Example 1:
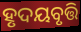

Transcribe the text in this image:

ହୃଦୟବୃତ୍ତି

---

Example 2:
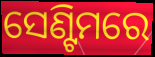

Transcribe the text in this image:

ସେଣ୍ଟିମରେ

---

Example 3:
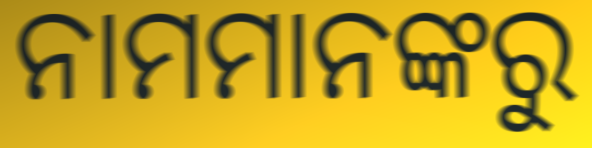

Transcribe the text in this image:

ନାମମାନଙ୍କରୁ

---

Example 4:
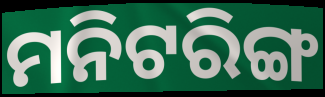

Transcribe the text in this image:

ମନିଟରିଙ୍ଗ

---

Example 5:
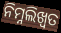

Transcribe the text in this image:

ନିମ୍ନଲିଖ୍ବତ